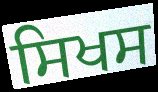
ਸਿਖਸ